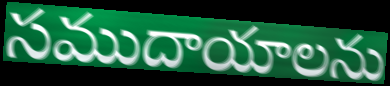
సముదాయాలను